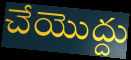
చేయొద్దు